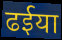
ढईया